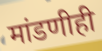
मांडणीही